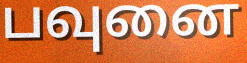
பவுனை